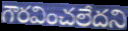
గౌరవించలేదని